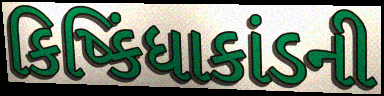
કિષ્કિંધાકાંડની